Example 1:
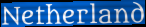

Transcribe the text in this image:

Netherland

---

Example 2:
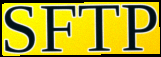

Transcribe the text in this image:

SFTP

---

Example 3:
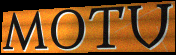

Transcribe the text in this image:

MOTU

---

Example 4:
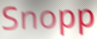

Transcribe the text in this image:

Snopp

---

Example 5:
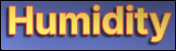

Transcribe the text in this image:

Humidity